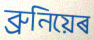
ব্ৰুনিয়েৰ